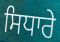
ਸਿਧਾਰੇ